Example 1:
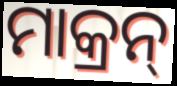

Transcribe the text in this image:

ମାକ୍ରନ୍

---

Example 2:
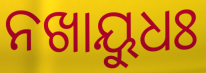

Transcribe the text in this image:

ନଖାୟୁଧଃ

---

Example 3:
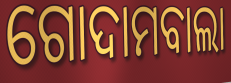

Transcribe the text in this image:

ଗୋଦାମବାଲା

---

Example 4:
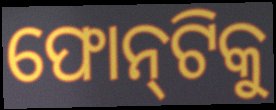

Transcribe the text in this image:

ଫୋନ୍‌ଟିକୁ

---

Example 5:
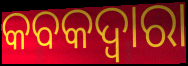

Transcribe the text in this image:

କବକଦ୍ୱାରା